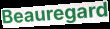
Beauregard